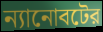
ন্যানোবটের